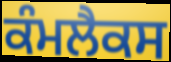
ਕੰਮਲੈਕਸ